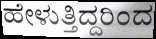
ಹೇಳುತ್ತಿದ್ದರಿಂದ